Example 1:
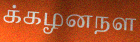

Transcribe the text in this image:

க்கழனநள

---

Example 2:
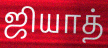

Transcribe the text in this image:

ஜியாத்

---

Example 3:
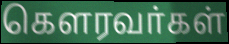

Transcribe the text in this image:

கெளரவர்கள்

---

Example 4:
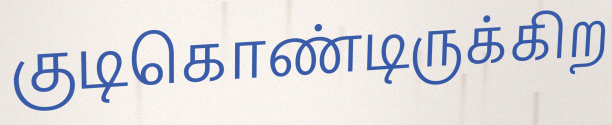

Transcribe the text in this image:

குடிகொண்டிருக்கிற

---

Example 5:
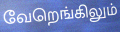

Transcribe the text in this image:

வேறெங்கிலும்